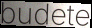
budete